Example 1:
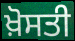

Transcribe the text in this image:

ਖ਼ੋਸਤੀ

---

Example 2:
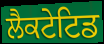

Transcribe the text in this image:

ਲੈਕਟੇਟਿਡ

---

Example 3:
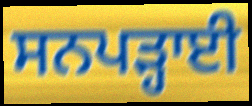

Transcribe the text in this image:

ਸਨਪੜ੍ਹਾਈ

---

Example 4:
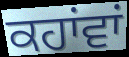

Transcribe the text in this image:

ਕਹਾਂਵਾਂ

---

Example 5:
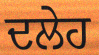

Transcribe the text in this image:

ਦਲੇਹ